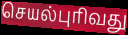
செயல்புரிவது